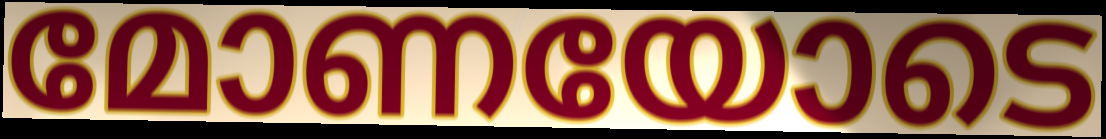
മോണയോടെ